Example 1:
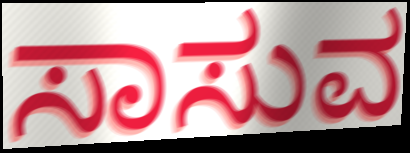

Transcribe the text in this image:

ಸಾಸುವ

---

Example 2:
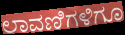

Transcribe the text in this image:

ಲಾವಣಿಗಳಿಗೂ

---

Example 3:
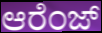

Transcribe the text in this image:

ಆರೆಂಜ್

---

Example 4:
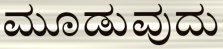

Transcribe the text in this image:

ಮೂಡುವುದು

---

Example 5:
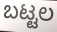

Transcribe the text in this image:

ಬಟ್ಟಲ